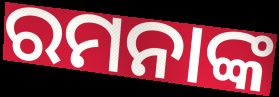
ରମନାଙ୍କ